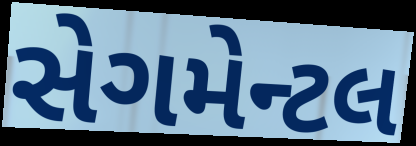
સેગમેન્ટલ